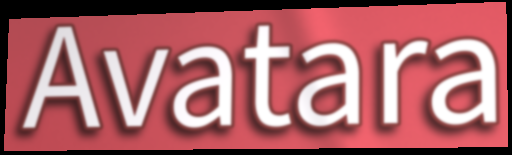
Avatara